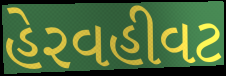
હેરવહીવટ